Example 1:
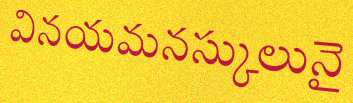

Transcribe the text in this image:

వినయమనస్కులునై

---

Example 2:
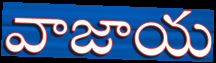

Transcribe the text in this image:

వాజాయ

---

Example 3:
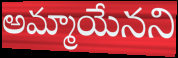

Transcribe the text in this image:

అమ్మాయేనని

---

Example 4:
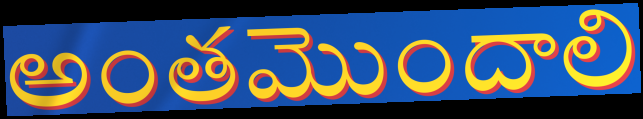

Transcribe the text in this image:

అంతమొందాలి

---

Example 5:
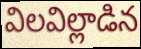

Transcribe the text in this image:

విలవిల్లాడిన